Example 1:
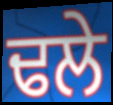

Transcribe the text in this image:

ਢਲੇ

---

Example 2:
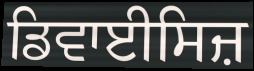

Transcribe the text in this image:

ਡਿਵਾਈਸਿਜ਼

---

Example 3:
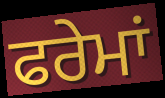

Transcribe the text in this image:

ਫਰੇਮਾਂ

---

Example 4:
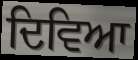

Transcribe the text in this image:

ਦਿਵਿਆ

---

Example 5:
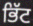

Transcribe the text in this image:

ਭਿੱਟ